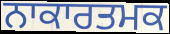
ਨਾਕਾਰਤਮਕ